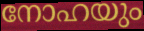
നോഹയും